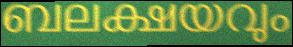
ബലക്ഷയവും